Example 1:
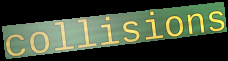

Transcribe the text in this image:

collisions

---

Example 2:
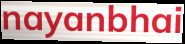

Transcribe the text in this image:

nayanbhai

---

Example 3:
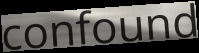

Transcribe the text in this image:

confound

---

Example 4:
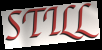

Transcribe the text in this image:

STILL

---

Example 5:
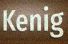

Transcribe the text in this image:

Kenig